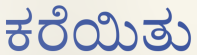
ಕರೆಯಿತು